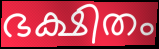
ഭക്ഷിതം